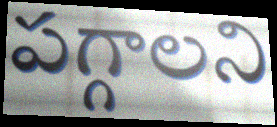
పగ్గాలని